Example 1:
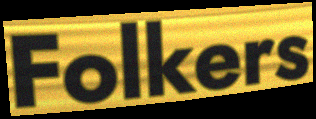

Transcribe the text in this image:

Folkers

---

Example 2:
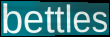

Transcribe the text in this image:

bettles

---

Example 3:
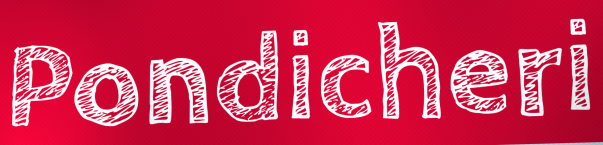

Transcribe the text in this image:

Pondicheri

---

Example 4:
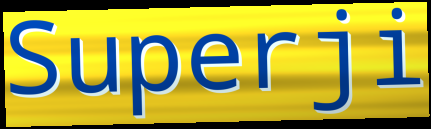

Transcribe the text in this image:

Superji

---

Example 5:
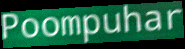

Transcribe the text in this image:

Poompuhar